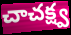
చాచక్ష్వ